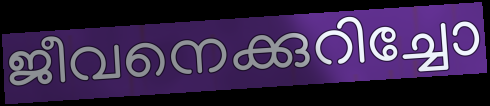
ജീവനെക്കുറിച്ചോ